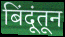
बिंदूंतून